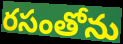
రసంతోను